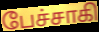
பேச்சாகி